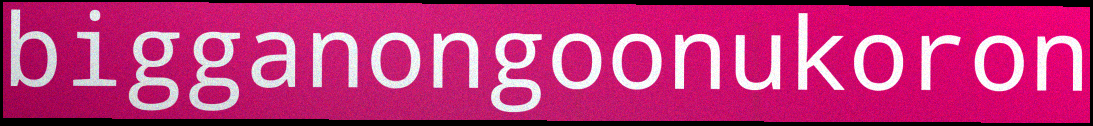
bigganongoonukoron